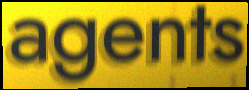
agents